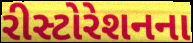
રીસ્ટોરેશનના